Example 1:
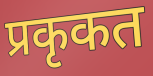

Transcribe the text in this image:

प्रकृकत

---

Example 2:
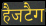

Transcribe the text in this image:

हैजटैग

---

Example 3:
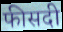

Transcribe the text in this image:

फीसदी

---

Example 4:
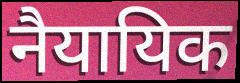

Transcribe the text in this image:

नैयायिक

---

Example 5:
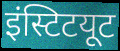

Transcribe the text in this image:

इंस्टिटयूट